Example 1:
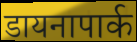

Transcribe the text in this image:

डायनापार्क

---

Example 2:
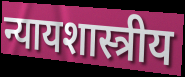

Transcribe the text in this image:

न्यायशास्त्रीय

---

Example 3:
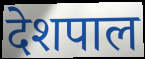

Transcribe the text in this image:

देशपाल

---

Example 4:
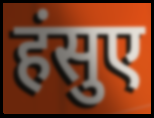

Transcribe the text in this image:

हंसुए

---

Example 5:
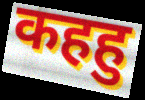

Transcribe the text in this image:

कहहु